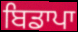
ਬਿਡਾਪਾ